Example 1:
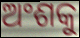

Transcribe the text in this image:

ଅଂଶକୁ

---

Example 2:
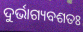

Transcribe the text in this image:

ଦୁର୍ଭାଗ୍ୟବଶତଃ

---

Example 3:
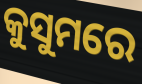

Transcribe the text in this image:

କୁସୁମରେ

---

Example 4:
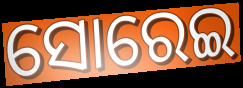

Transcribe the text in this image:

ସୋରେଇ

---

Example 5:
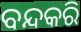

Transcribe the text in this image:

ବନ୍ଦକରି